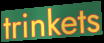
trinkets